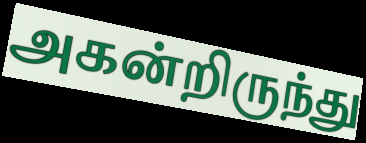
அகன்றிருந்து